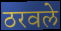
ठरवले